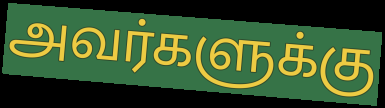
அவர்களுக்கு